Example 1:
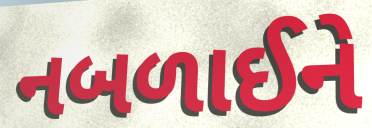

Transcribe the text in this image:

નબળાઈને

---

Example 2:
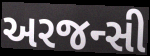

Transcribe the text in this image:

અરજન્સી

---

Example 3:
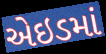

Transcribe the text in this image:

એઇડમાં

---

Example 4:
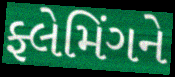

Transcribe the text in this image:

ફ્લેમિંગને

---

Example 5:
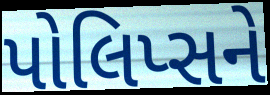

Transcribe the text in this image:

પોલિપ્સને